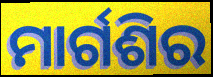
ମାର୍ଗଶିର